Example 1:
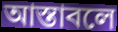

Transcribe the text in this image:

আস্তাবলে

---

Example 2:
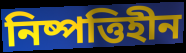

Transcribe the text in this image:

নিষ্পত্তিহীন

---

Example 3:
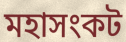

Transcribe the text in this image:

মহাসংকট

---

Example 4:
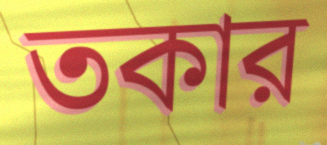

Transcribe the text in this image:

তকার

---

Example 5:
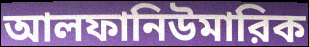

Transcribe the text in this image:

আলফানিউমারিক